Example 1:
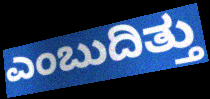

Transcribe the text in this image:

ಎಂಬುದಿತ್ತು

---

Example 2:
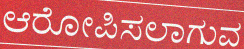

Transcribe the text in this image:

ಆರೋಪಿಸಲಾಗುವ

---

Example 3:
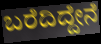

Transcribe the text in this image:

ಬರೆದಿದ್ದೇನೆ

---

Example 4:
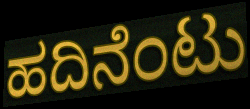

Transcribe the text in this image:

ಹದಿನೆಂಟು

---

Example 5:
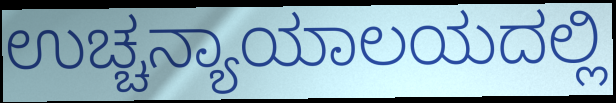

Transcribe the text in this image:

ಉಚ್ಚನ್ಯಾಯಾಲಯದಲ್ಲಿ